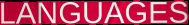
LANGUAGES